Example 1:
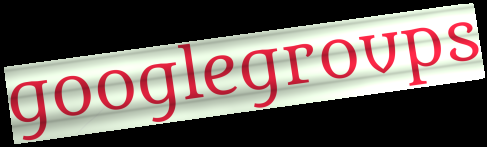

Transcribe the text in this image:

googlegroups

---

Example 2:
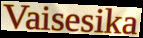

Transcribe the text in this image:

Vaisesika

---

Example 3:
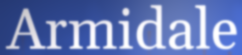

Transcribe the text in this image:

Armidale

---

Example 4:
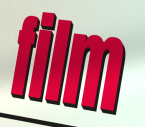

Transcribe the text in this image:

film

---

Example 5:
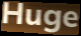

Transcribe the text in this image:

Huge